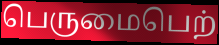
பெருமைபெற்